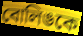
বোলিঙকে